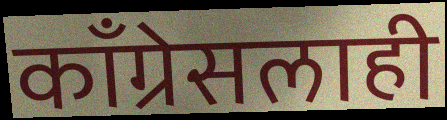
काँग्रेसलाही